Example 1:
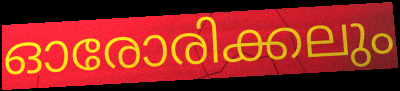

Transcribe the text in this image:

ഓരോരിക്കലും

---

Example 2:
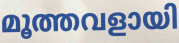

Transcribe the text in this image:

മൂത്തവളായി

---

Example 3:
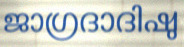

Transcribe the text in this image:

ജാഗ്രദാദിഷു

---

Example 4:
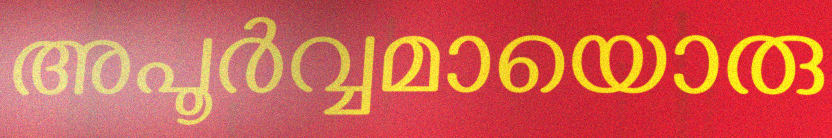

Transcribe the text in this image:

അപൂർവ്വമായൊരു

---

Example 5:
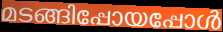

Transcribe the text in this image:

മടങ്ങിപ്പോയപ്പോൾ